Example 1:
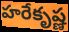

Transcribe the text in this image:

హరేకృష్ణ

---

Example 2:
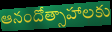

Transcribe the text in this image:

ఆనందోత్సాహాలకు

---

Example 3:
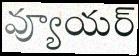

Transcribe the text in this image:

వ్యూయర్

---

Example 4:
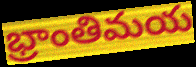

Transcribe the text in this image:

భ్రాంతిమయ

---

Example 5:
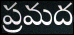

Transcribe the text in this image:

ప్రమద